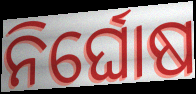
ନିର୍ଘୋଷ